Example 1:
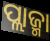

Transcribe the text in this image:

ପ୍ଲାଜ୍ମା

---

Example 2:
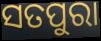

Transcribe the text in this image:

ସତପୁରା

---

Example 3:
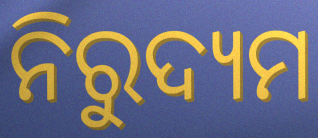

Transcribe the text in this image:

ନିରୁଦ୍ୟମ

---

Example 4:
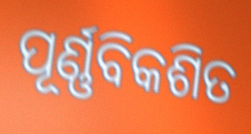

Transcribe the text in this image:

ପୂର୍ଣ୍ଣବିକଶିତ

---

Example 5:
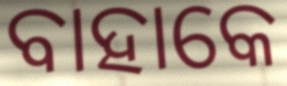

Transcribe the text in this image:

ବାହାକେ